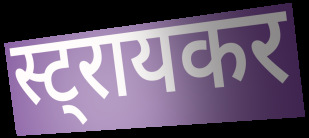
स्ट्रायकर